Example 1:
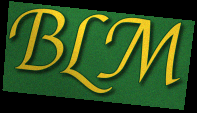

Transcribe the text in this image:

BLM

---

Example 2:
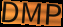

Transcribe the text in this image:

DMP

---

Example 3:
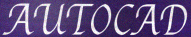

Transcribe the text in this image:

AUTOCAD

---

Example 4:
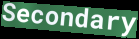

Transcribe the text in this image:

Secondary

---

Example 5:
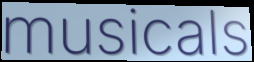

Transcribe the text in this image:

musicals